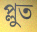
প্লুত